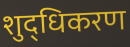
शुद्धिकरण